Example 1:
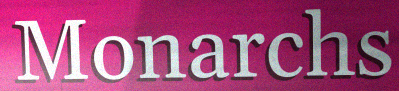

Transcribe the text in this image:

Monarchs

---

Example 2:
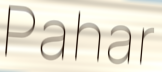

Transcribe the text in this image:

Pahar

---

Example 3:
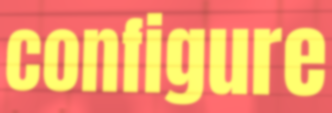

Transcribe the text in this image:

configure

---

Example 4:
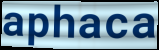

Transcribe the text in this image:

aphaca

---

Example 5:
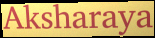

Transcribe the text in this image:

Aksharaya